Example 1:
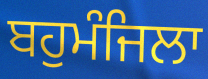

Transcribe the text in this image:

ਬਹੁਮੰਜਿਲਾ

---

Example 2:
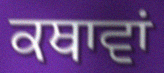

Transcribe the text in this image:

ਕਥਾਵਾਂ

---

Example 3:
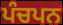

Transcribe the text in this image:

ਪੰਚਪਨ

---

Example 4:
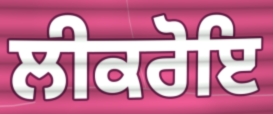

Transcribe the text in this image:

ਲੀਕਰੋਇ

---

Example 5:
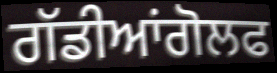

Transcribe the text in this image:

ਗੱਡੀਆਂਗੋਲਫ